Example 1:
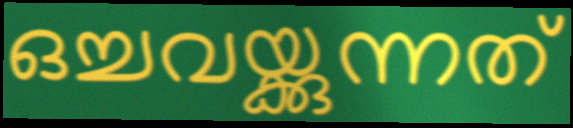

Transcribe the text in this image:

ഒച്ചവയ്ക്കുന്നത്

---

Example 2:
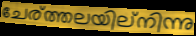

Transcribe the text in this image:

ചേര്ത്തലയില്നിന്നു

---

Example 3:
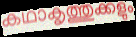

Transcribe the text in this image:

കഥാകൃത്തുക്കളും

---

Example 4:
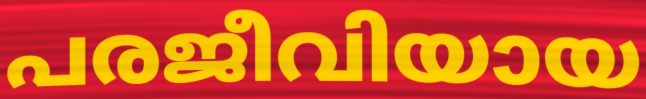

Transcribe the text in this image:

പരജീവിയായ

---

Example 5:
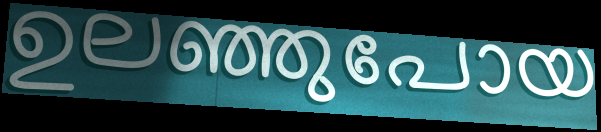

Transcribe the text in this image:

ഉലഞ്ഞുപോയ